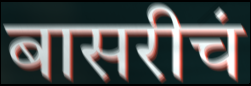
बासरीचं